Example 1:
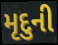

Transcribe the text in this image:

મૃદુની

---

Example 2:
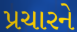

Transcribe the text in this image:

પ્રચારને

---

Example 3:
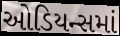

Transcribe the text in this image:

ઓડિયન્સમાં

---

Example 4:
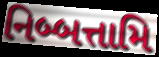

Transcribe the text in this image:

નિબ્બત્તામિ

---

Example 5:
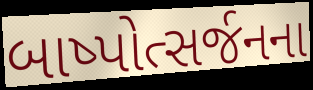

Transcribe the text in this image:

બાષ્પોત્સર્જનના